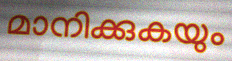
മാനിക്കുകയും